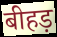
बीहड़